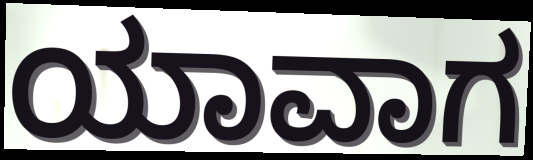
ಯಾವಾಗ